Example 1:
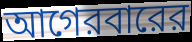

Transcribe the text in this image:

আগেরবারের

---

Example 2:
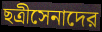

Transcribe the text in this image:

ছত্রীসেনাদের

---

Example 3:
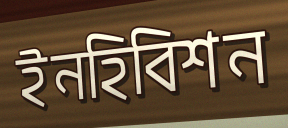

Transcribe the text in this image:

ইনহিবিশন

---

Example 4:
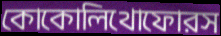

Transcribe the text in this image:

কোকোলিথোফোরস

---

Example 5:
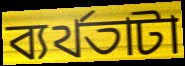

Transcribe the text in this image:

ব্যর্থতাটা